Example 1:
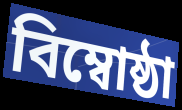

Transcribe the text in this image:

বিম্বোষ্ঠা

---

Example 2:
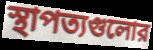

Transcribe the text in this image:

স্থাপত্যগুলোর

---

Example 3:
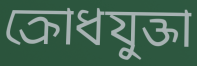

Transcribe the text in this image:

ক্রোধযুক্তা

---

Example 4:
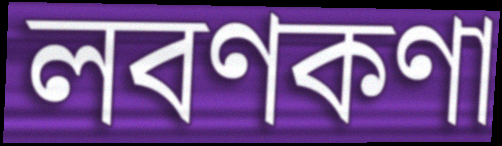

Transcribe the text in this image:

লবণকণা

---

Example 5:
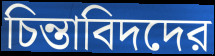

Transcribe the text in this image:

চিন্তাবিদদের